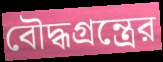
বৌদ্ধগ্রন্ত্রের